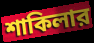
শাকিলার